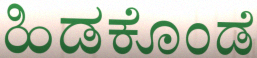
ಹಿಡಕೊಂಡೆ